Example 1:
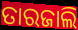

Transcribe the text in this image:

ତାରଜାଲି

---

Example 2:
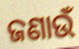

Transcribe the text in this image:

ଜଣାଉଁ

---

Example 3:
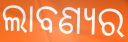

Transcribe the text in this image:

ଲାବଣ୍ୟର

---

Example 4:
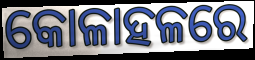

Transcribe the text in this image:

କୋଳାହଳରେ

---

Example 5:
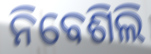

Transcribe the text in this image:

ନିବେଶିଲି